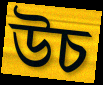
উচ